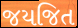
જયજિત